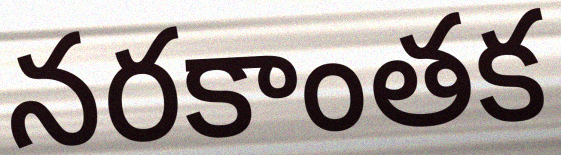
నరకాంతక